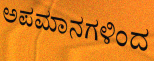
ಅಪಮಾನಗಳಿಂದ